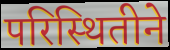
परिस्थितीने